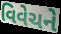
વિવેચને